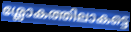
ശ്ലോകത്തിലാകട്ടെ